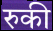
रुकी